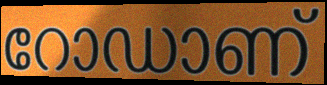
റോഡാണ്